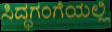
ಸಿದ್ಧಗಂಗೆಯಲ್ಲಿ